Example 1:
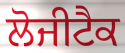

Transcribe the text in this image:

ਲੋਜੀਟੈਕ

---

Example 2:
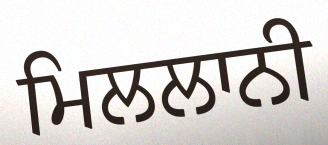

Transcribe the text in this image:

ਮਿਲਲਾਨੀ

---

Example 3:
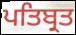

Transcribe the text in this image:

ਪਤਿਬ੍ਰਤ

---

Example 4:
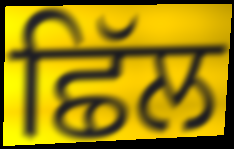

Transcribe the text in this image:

ਛਿੱਲ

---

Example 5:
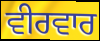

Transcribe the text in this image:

ਵੀਰਵਾਰ